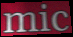
mic